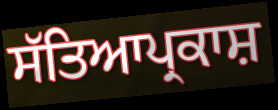
ਸੱਤਿਆਪ੍ਰਕਾਸ਼